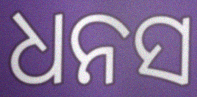
ଧନସ